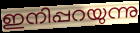
ഇനിപ്പറയുന്നു